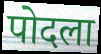
पोदला